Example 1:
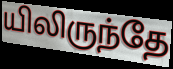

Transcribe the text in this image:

யிலிருந்தே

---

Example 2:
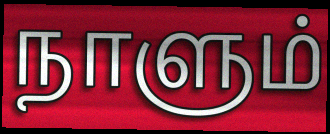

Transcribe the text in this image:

நாளும்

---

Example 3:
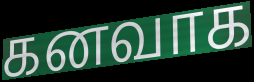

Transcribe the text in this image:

கனவாக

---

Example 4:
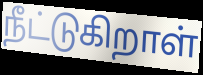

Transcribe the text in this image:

நீட்டுகிறாள்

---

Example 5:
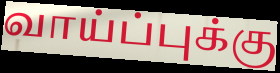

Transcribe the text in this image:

வாய்ப்புக்கு